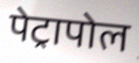
पेट्रापोल